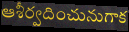
ఆశీర్వదించునుగాక